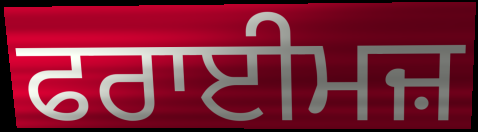
ਫਰਾਈਮਜ਼